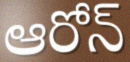
ఆరోన్